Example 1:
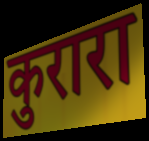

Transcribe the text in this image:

कुरारा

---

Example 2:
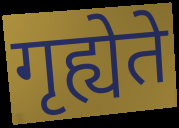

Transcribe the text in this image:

गृह्येते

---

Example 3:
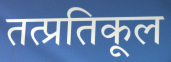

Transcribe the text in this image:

तत्प्रतिकूल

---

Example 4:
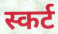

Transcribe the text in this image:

स्कर्ट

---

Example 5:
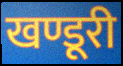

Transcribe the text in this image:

खण्डूरी